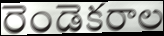
రెండెకరాల